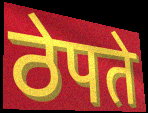
ठेपते